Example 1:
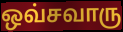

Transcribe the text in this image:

ஒவ்சவாரு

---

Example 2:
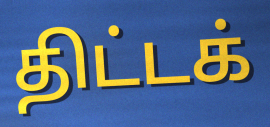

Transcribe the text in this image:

திட்டக்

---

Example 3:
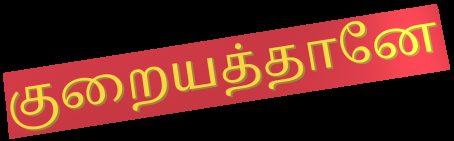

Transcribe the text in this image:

குறையத்தானே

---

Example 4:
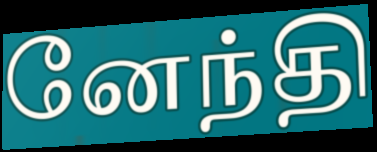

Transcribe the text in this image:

னேந்தி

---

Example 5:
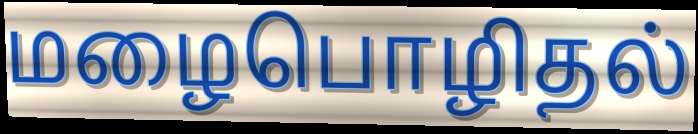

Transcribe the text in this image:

மழைபொழிதல்